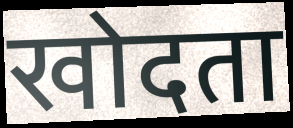
खोदता